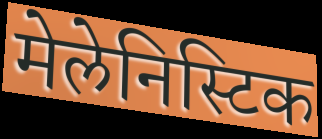
मेलेनिस्टिक